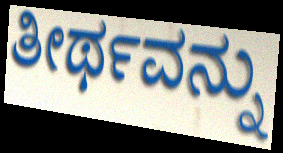
ತೀರ್ಥವನ್ನು